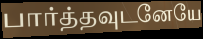
பார்த்தவுடனேயே